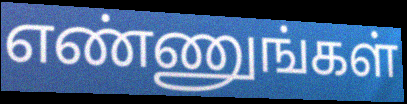
எண்ணுங்கள்